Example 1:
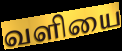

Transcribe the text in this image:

வளியை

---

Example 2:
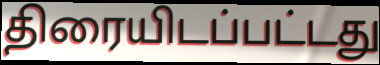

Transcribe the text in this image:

திரையிடப்பட்டது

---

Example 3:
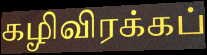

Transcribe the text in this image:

கழிவிரக்கப்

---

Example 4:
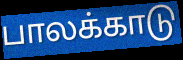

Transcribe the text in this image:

பாலக்காடு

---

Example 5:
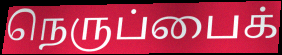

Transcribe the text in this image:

நெருப்பைக்